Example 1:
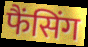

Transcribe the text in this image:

फैंसिंग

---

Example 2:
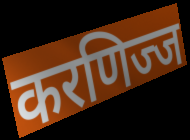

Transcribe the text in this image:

करणिज्ज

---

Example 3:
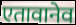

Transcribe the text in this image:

एतावानेव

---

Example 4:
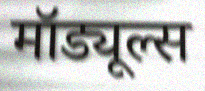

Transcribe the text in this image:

मॉड्यूल्स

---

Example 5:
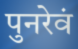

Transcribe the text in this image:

पुनरेवं